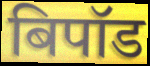
बिपॉड